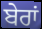
ਬੇਰਾਂ